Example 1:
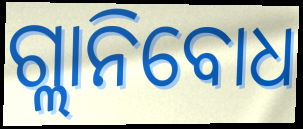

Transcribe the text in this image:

ଗ୍ଲାନିବୋଧ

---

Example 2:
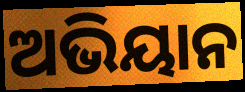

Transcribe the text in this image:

ଅଭିୟାନ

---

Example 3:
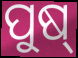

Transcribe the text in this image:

ପୁଷ୍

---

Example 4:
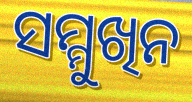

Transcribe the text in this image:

ସମ୍ମୁଖିନ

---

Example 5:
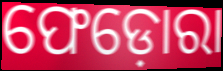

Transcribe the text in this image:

ଫେଡ଼ୋରା